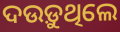
ଦଉଡ଼ୁଥିଲେ